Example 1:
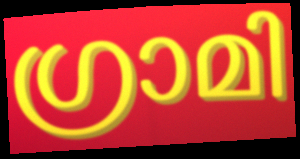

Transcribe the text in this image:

ഗ്രാമി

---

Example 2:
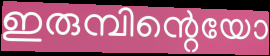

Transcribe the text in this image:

ഇരുമ്പിന്റെയോ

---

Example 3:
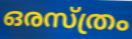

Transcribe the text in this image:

ഒരസ്ത്രം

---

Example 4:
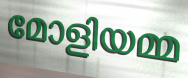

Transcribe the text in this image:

മോളിയമ്മ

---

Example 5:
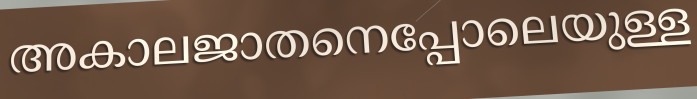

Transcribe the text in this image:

അകാലജാതനെപ്പോലെയുള്ള